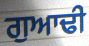
ਗੁਆਢੀ